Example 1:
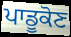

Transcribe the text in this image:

ਪਾਡੂਕੋਣ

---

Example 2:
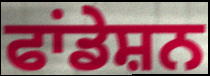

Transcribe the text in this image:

ਫਾਂਡੇਸ਼ਨ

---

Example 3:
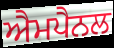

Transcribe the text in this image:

ਐਮਪੈਨਲ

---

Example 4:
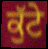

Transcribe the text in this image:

ਕੁੱਟੇ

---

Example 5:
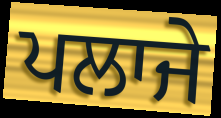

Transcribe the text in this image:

ਪਲਾਜੇ